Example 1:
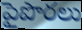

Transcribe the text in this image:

పైపొరలు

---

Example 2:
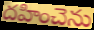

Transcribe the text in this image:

దహించెను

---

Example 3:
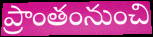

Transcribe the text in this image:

ప్రాంతంనుంచి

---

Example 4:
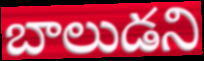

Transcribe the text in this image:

బాలుడని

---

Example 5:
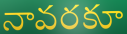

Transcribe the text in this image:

నావరకూ